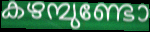
കഴമ്പുണ്ടോ